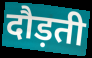
दौड़ती